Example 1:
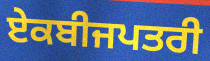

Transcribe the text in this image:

ਏਕਬੀਜਪਤਰੀ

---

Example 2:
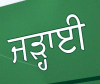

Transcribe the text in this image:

ਜੜ੍ਹਾਈ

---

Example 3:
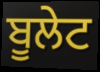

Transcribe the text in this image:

ਬੂਲੇਟ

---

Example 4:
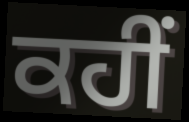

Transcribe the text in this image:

ਕਹੀਂ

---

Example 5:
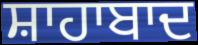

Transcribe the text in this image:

ਸ਼ਾਹਾਬਾਦ